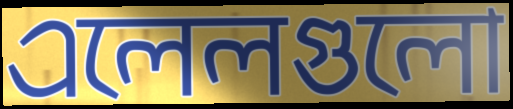
এলেলগুলো